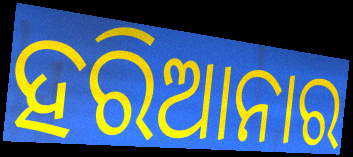
ହରିଆନାର